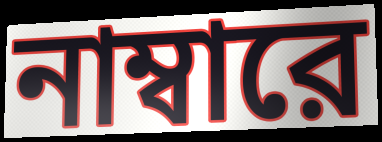
নাম্বারে